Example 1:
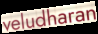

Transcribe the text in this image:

veludharan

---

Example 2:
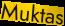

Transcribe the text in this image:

Muktas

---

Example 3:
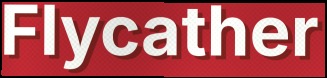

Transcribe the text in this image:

Flycather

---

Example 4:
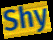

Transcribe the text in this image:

Shy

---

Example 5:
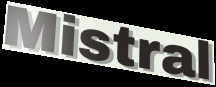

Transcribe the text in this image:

Mistral